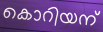
കൊറിയന്